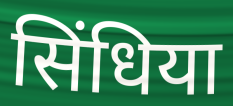
सिंधिया